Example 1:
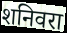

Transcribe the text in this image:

शनिवरा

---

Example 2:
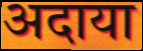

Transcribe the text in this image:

अदाया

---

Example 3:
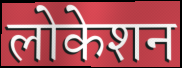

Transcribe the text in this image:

लोकेशन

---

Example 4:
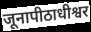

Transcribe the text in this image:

जूनापीठाधीश्वर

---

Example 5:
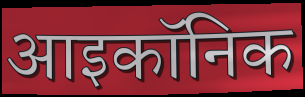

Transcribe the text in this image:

आइकॉनिक